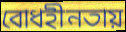
বোধহীনতায়